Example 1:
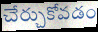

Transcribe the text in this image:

చేర్చుకోవడం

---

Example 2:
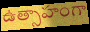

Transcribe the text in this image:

ఉత్సాహంగా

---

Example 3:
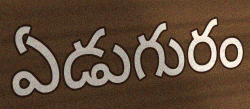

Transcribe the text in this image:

ఏడుగురం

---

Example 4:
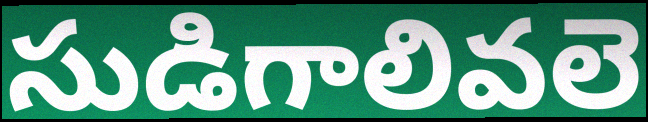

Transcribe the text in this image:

సుడిగాలివలె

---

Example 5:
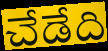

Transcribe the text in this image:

చేడేది